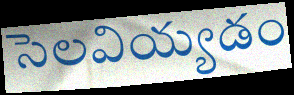
సెలవియ్యడం